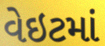
વેઇટમાં